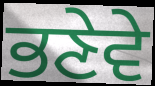
ਭਣੇਵੇ